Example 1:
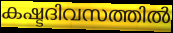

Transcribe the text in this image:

കഷ്ടദിവസത്തിൽ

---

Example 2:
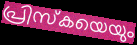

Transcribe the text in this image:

പ്രിസ്കയെയും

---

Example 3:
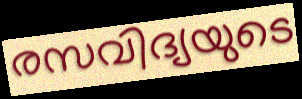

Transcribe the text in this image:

രസവിദ്യയുടെ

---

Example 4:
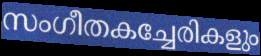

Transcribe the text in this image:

സംഗീതകച്ചേരികളും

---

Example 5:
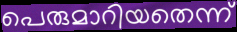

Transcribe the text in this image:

പെരുമാറിയതെന്ന്